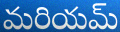
మరియమ్